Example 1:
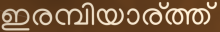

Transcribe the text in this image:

ഇരമ്പിയാര്ത്ത്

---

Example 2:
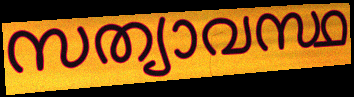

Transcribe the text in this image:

സത്യാവസ്ഥ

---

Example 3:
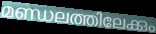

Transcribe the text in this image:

മണ്ഡലത്തിലേക്കും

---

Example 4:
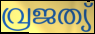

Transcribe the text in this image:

വ്രജത്യ്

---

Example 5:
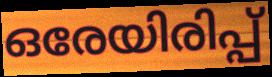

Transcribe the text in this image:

ഒരേയിരിപ്പ്